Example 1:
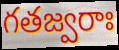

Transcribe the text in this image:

గతజ్వరాః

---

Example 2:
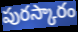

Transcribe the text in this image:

పురస్కారం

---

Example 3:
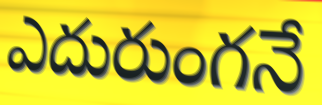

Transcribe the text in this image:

ఎదురుంగనే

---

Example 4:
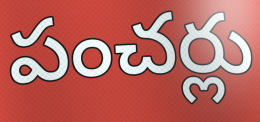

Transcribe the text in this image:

పంచర్లు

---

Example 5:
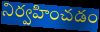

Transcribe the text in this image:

నిర్వహించడం